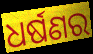
ଧର୍ଷଣର